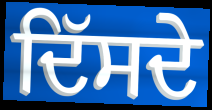
ਦਿੱਸਦੇ